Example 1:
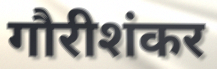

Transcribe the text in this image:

गौरीशंकर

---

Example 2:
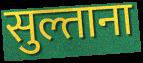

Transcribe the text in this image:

सुल्ताना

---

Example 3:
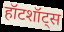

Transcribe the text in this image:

हॉटशॉट्स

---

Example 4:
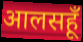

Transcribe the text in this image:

आलसहूँ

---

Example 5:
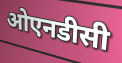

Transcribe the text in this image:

ओएनडीसी